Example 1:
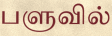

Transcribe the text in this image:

பளுவில்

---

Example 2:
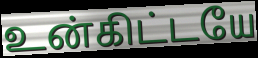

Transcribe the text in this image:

உன்கிட்டயே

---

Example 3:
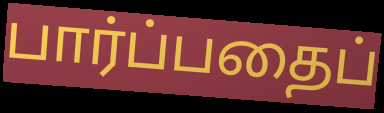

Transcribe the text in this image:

பார்ப்பதைப்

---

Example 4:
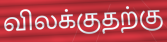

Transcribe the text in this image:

விலக்குதற்கு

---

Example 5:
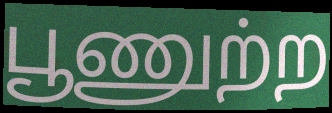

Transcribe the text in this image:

பூணுற்ற